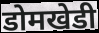
डोमखेडी